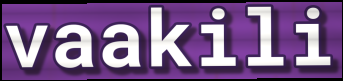
vaakili